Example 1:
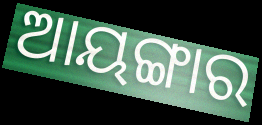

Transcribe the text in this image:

ଆୟଙ୍ଗାର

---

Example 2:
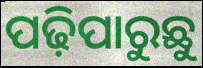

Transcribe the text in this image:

ପଢ଼ିପାରୁଛୁ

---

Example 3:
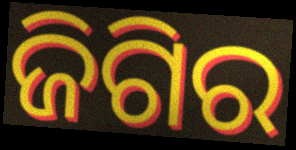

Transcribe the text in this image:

ଜିଗିର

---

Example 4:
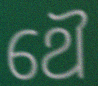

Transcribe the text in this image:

ଥୈ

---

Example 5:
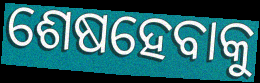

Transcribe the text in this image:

ଶେଷହେବାକୁ